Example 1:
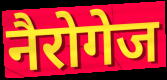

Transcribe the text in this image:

नैरोगेज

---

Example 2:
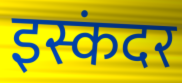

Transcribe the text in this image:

इस्कंदर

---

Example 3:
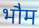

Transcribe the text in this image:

भौम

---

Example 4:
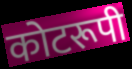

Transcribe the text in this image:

कोटरूपी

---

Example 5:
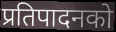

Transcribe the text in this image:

प्रतिपादनको